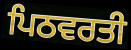
ਪਿਠਵਰਤੀ